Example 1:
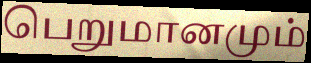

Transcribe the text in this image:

பெறுமானமும்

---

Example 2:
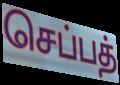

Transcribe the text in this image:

செப்பத்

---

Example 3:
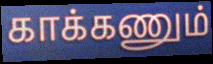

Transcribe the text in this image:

காக்கணும்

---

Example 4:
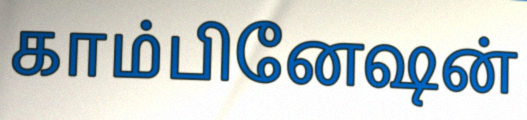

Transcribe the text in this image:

காம்பினேஷன்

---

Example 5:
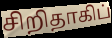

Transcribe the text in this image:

சிறிதாகிப்